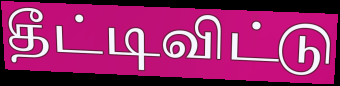
தீட்டிவிட்டு